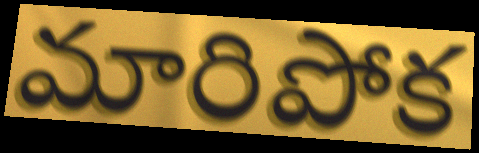
మారిపోక